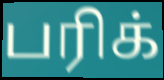
பரிக்